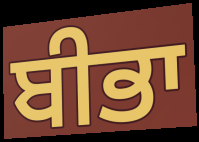
ਬੀਭਾ